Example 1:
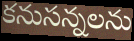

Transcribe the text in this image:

కనుసన్నలను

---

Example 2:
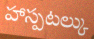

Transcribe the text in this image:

హాస్పటల్కు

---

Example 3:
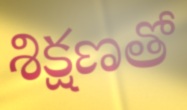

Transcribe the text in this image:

శిక్షణతో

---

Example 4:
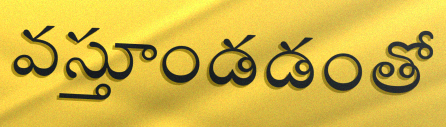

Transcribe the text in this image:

వస్తూండడంతో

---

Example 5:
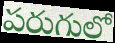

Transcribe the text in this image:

పరుగులో